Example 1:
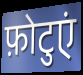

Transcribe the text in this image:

फ़ोटुएं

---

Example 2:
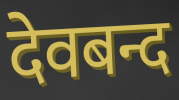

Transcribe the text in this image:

देवबन्द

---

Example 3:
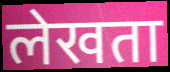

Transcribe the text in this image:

लेखता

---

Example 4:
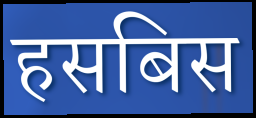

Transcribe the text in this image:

हसबिस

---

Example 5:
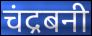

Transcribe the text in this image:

चंद्रबनी